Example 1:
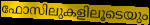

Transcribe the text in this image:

ഫോസിലുകളിലൂടെയും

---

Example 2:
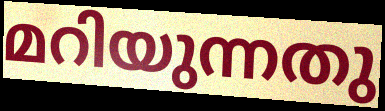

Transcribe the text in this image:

മറിയുന്നതു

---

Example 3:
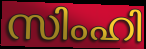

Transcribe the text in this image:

സിംഹി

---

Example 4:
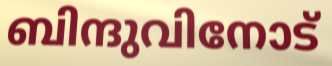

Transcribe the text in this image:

ബിന്ദുവിനോട്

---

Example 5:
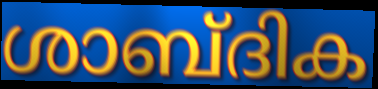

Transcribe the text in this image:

ശാബ്ദിക